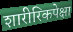
शारीरिकपेक्षा